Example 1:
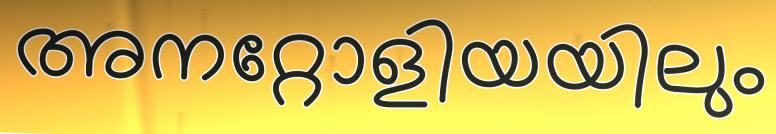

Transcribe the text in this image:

അനറ്റോളിയയിലും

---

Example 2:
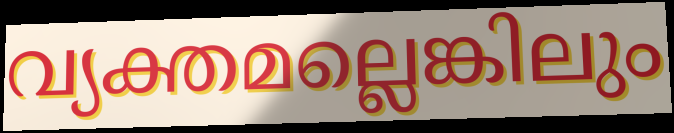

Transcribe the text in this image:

വ്യക്തമല്ലെങ്കിലും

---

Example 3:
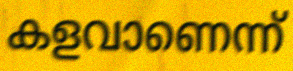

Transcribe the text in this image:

കളവാണെന്ന്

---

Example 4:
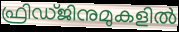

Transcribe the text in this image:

ഫ്രിഡ്ജിനുമുകളിൽ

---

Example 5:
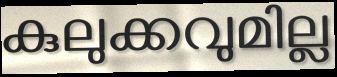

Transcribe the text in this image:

കുലുക്കവുമില്ല